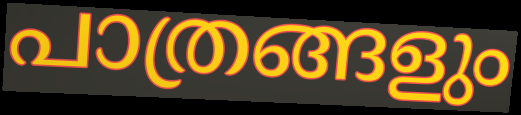
പാത്രങ്ങളും